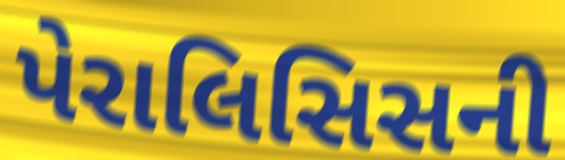
પેરાલિસિસની